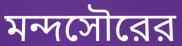
মন্দসৌরের